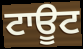
ਟਾਊਟ